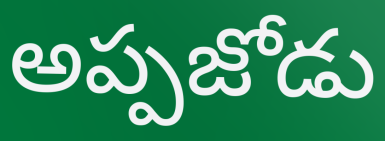
అప్పజోడు